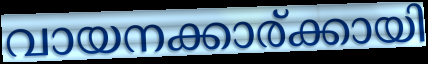
വായനക്കാര്ക്കായി